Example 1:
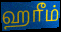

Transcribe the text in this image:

ஹரீம்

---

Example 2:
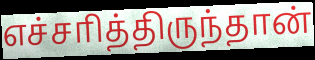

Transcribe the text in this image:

எச்சரித்திருந்தான்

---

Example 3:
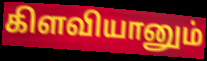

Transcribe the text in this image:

கிளவியானும்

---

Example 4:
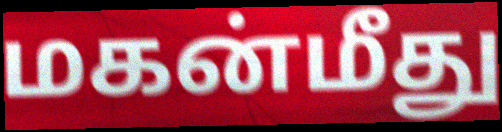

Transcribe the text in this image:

மகன்மீது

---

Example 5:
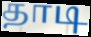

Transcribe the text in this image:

தாடி